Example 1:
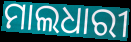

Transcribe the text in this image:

ମାଲଧାରୀ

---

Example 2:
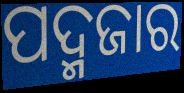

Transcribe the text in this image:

ପଦ୍ମଜାର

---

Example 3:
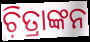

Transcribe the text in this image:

ଚ଼ିତ୍ରାଙ୍କନ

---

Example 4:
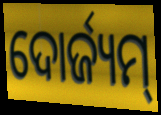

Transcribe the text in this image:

ଦୋର୍ଜ୍ୟମ୍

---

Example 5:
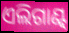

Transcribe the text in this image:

ଏଲିଗାଣ୍ଟ୍